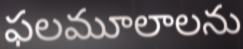
ఫలమూలాలను